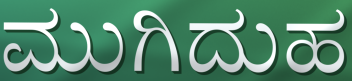
ಮುಗಿದುಹ